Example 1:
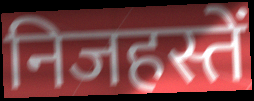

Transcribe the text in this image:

निजहस्तें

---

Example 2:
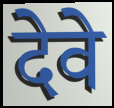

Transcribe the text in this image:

देवे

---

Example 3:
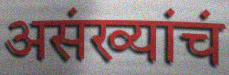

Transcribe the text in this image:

असंख्यांचं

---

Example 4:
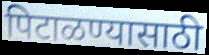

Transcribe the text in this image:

पिटाळण्यासाठी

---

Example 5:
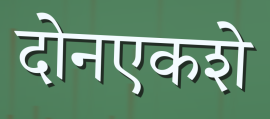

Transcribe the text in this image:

दोनएकशे